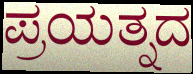
ಪ್ರಯತ್ನದ